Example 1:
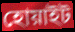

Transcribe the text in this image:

হোয়াইট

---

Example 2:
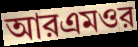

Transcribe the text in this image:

আরএমওর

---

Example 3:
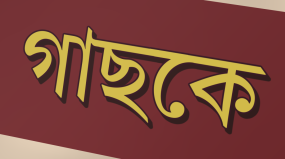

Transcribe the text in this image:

গাছকে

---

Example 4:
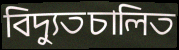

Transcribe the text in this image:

বিদ্যুতচালিত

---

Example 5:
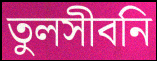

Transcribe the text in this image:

তুলসীবনি